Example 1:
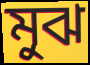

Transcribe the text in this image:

মুঝ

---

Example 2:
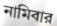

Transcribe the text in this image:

নামিবার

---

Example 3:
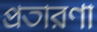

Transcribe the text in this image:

প্রতারণা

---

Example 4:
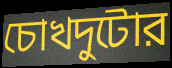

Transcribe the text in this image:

চোখদুটোর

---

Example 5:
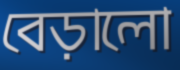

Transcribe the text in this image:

বেড়ালো